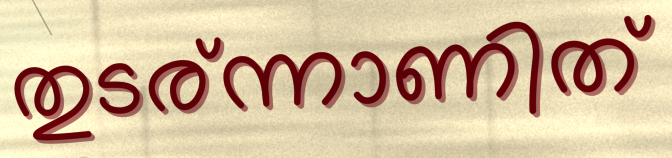
തുടര്ന്നാണിത്